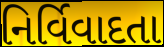
નિર્વિવાદતા